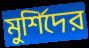
মুর্শিদের